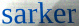
sarker